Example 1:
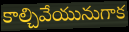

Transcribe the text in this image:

కాల్చివేయునుగాక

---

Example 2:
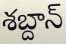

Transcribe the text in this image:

శబ్దాన్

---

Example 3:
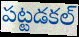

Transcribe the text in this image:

పట్టడకల్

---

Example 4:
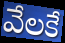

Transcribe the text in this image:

వేలకే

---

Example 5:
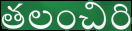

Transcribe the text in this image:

తలంచిరి